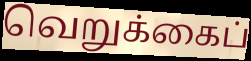
வெறுக்கைப்